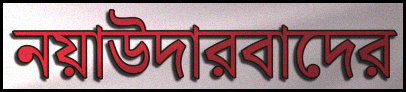
নয়াউদারবাদের